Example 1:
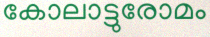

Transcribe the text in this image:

കോലാട്ടുരോമം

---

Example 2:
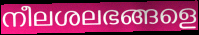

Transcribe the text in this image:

നീലശലഭങ്ങളെ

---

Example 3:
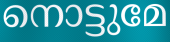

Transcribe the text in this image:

നൊട്ടുമേ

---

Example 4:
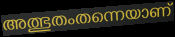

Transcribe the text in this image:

അത്ഭുതംതന്നെയാണ്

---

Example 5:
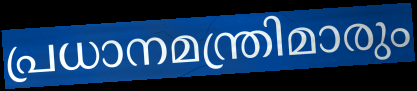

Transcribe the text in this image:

പ്രധാനമന്ത്രിമാരും